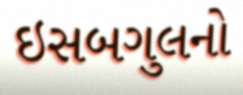
ઇસબગુલનો